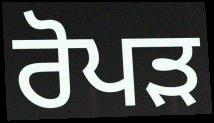
ਰੋਪਡ਼